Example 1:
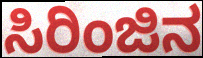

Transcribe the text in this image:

ಸಿರಿಂಜಿನ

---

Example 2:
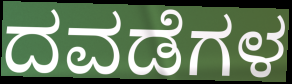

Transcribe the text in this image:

ದವಡೆಗಳ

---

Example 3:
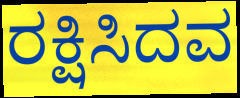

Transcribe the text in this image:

ರಕ್ಷಿಸಿದವ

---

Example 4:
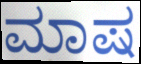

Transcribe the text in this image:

ಮಾಷ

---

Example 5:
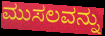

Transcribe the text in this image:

ಮುಸಲವನ್ನು